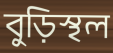
বুড়িস্থল